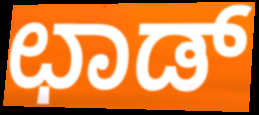
ಛಾಡ್